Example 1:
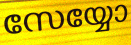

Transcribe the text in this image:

സേയ്യോ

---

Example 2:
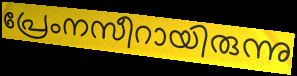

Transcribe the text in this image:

പ്രേംനസീറായിരുന്നു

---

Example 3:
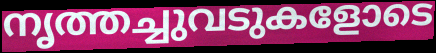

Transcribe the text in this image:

നൃത്തച്ചുവടുകളോടെ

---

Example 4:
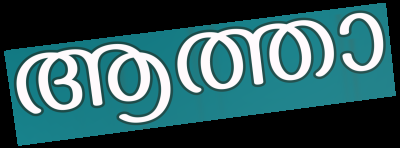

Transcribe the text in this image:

ആത്താ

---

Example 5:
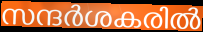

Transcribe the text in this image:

സന്ദർശകരിൽ